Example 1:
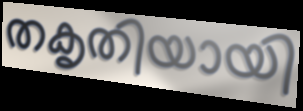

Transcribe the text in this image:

തകൃതിയായി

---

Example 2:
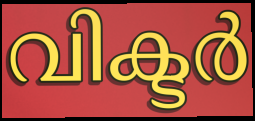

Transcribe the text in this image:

വിക്ടർ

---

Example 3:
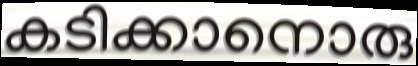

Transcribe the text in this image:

കടിക്കാനൊരു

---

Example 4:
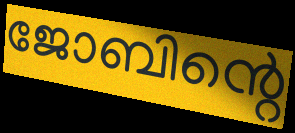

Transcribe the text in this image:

ജോബിന്റെ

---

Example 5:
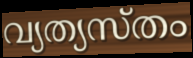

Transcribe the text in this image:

വ്യത്യസ്തം